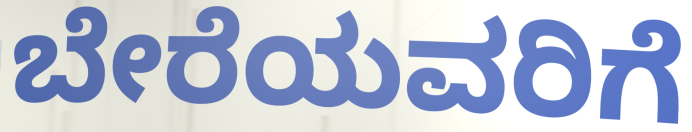
ಬೇರೆಯವರಿಗೆ